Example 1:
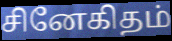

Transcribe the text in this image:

சினேகிதம்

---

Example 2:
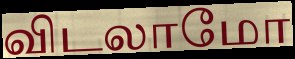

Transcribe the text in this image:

விடலாமோ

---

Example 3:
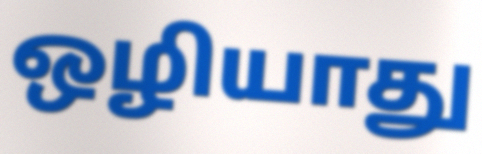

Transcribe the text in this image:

ஒழியாது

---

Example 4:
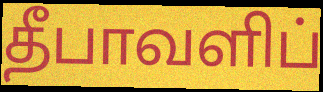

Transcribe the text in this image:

தீபாவளிப்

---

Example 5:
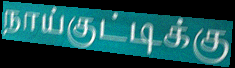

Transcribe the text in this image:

நாய்குட்டிக்கு